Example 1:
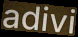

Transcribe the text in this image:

adivi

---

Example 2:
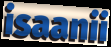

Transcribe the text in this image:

isaanii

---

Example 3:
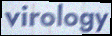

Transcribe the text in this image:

virology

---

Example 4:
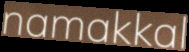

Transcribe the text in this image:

namakkal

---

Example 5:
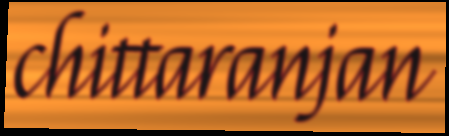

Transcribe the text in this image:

chittaranjan